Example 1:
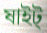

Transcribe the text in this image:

ষাইট্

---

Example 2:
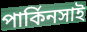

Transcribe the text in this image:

পার্কিনসাই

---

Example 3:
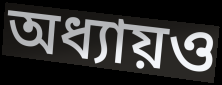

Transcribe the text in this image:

অধ্যায়ও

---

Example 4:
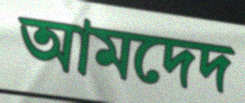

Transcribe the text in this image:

আমদেদ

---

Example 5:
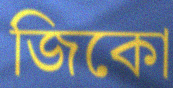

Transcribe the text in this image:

জিকো